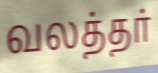
வலத்தர்